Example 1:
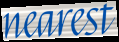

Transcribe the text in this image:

nearest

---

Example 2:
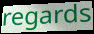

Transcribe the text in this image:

regards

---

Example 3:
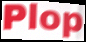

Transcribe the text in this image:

Plop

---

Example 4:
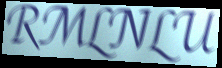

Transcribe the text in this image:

RMLNLU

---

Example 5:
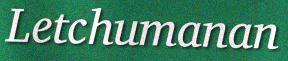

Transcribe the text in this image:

Letchumanan